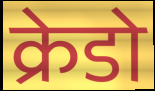
क्रेडो